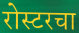
रोस्टरचा